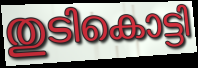
തുടികൊട്ടി